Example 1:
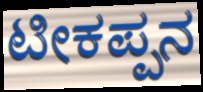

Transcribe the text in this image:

ಟೀಕಪ್ಪನ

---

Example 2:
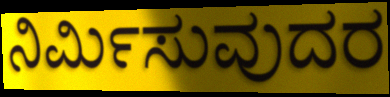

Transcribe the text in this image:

ನಿರ್ಮಿಸುವುದರ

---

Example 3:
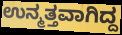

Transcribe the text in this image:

ಉನ್ಮತ್ತವಾಗಿದ್ದ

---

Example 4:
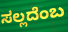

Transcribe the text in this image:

ಸಲ್ಲದೆಂಬ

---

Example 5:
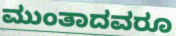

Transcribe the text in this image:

ಮುಂತಾದವರೂ